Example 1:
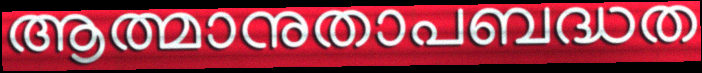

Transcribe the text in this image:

ആത്മാനുതാപബദ്ധത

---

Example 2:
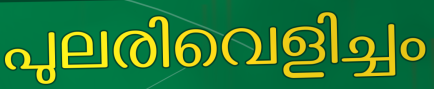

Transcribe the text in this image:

പുലരിവെളിച്ചം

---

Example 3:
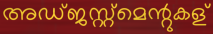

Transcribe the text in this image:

അഡ്ജസ്റ്റ്മെന്റുകള്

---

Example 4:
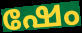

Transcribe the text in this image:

ഷേം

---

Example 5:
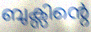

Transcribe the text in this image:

ബുക്സിന്റെ